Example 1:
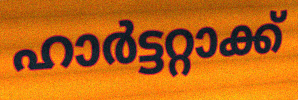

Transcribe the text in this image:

ഹാർട്ടറ്റാക്ക്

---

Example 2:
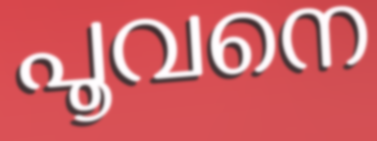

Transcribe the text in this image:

പൂവനെ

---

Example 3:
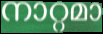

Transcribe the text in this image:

നാറ്റമാ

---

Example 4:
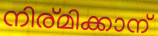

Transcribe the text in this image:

നിര്മിക്കാന്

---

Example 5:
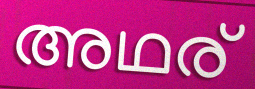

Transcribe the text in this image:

അഥര്